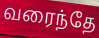
வரைந்தே